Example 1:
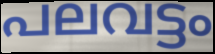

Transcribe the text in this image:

പലവട്ടം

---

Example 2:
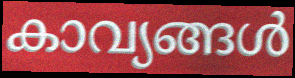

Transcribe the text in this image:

കാവ്യങ്ങൾ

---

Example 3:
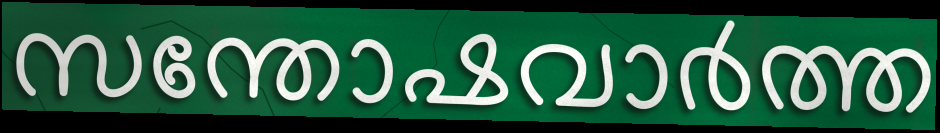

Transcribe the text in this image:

സന്തോഷവാർത്ത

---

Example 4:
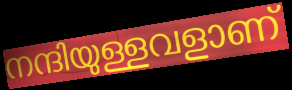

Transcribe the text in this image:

നന്ദിയുള്ളവളാണ്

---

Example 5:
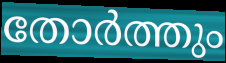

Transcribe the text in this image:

തോർത്തും